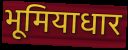
भूमियाधार